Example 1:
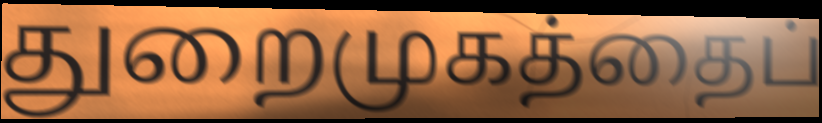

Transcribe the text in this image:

துறைமுகத்தைப்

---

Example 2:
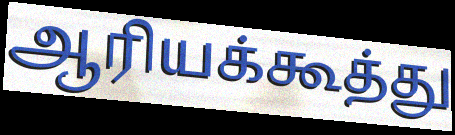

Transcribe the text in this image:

ஆரியக்கூத்து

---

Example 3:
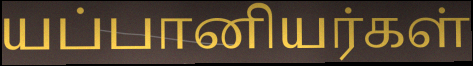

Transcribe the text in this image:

யப்பானியர்கள்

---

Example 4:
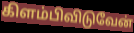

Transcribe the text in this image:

கிளம்பிவிடுவேன்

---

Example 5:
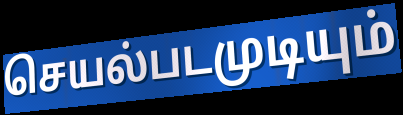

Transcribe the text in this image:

செயல்படமுடியும்